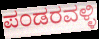
ಪಂಡರವಳ್ಳಿ